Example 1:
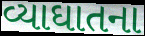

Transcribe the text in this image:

વ્યાઘાતના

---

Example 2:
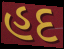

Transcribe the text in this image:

હદ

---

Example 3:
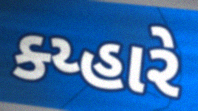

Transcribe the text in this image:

ક્ય્હારે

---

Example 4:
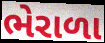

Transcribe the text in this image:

ભેરાળા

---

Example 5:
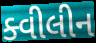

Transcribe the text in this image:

ક્વીલીન